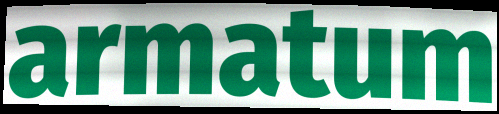
armatum